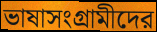
ভাষাসংগ্রামীদের